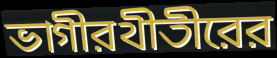
ভাগীরথীতীরের